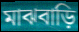
মাঝবাড়ি